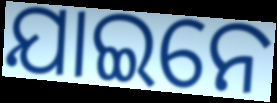
ଯାଇନେ